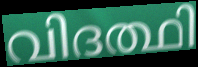
വിദത്ഥി